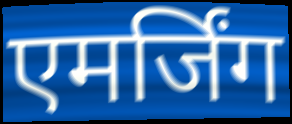
एमर्जिंग